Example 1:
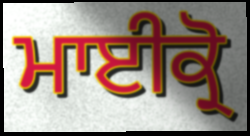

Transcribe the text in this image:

ਮਾਈਕ੍ਰੋ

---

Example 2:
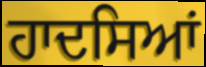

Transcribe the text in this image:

ਹਾਦਸਿਆਂ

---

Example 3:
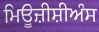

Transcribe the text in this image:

ਮਿਊਜ਼ੀਸ਼ੀਅੰਸ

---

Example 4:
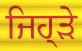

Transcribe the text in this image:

ਜਿਹ੍ੜੇ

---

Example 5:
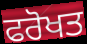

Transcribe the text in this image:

ਫਰੋਖਤ